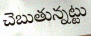
చెబుతున్నట్టు